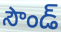
సౌండ్